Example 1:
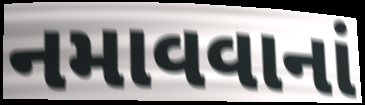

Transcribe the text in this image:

નમાવવાનાં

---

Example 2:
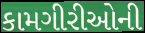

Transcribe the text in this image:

કામગીરીઓની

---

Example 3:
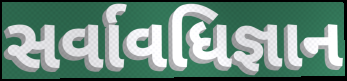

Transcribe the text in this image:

સર્વાવધિજ્ઞાન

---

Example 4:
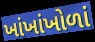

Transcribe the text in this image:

ખાંખાંખોળાં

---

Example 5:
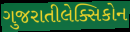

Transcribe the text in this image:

ગુજરાતીલેક્સિકોન